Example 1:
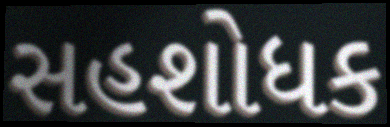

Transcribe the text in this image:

સહશોધક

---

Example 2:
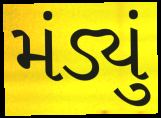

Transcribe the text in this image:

મંડ્યું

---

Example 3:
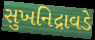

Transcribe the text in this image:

સુખનિદ્રાવડે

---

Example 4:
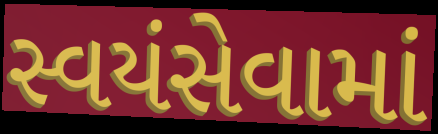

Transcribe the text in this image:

સ્વયંસેવામાં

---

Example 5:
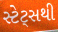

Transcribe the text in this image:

સ્ટેટ્સથી